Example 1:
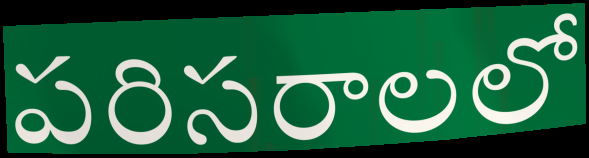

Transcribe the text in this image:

పరిసరాలలో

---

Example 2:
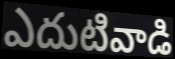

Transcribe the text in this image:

ఎదుటివాడి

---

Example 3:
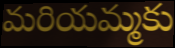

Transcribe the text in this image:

మరియమ్మకు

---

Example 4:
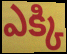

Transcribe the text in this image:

ఎక్కి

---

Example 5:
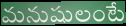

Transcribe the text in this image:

మనుషులంటే